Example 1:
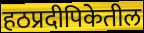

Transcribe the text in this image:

हठप्रदीपिकेतील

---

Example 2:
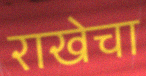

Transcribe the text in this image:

राखेचा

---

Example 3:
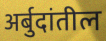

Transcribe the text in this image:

अर्बुदांतील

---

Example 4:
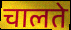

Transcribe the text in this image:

चालते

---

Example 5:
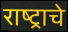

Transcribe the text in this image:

राष्ट्राचे